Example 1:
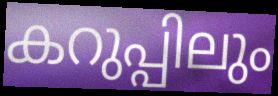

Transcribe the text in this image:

കറുപ്പിലും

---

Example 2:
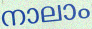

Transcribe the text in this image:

നാലാം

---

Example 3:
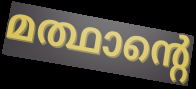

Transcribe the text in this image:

മത്ഥാന്റെ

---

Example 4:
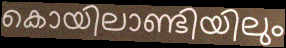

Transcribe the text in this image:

കൊയിലാണ്ടിയിലും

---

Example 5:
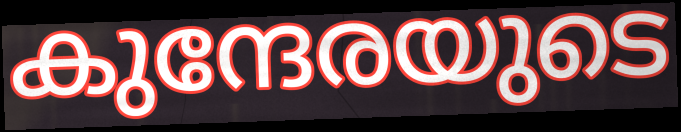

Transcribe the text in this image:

കുന്ദേരയുടെ